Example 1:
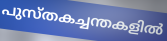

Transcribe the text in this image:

പുസ്തകച്ചന്തകളിൽ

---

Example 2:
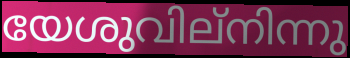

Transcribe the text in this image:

യേശുവില്നിന്നു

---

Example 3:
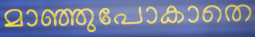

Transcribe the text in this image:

മാഞ്ഞുപോകാതെ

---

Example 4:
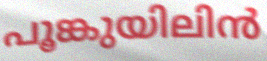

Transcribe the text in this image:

പൂങ്കുയിലിൻ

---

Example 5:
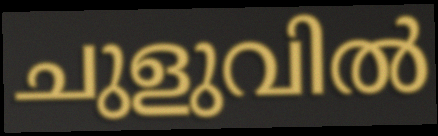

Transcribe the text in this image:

ചുളുവിൽ